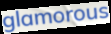
glamorous